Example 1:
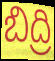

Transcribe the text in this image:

బిద్రి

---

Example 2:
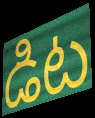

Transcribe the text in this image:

డిట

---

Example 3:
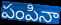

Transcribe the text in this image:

పంపినా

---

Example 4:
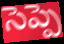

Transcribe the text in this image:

సెప్పె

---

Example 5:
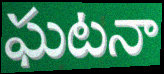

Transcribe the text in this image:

ఘటనా